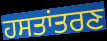
ਹਸਤਾਂਤਰਣ